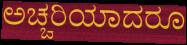
ಅಚ್ಚರಿಯಾದರೂ